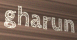
gharun